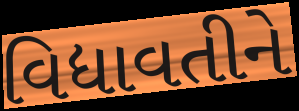
વિદ્યાવતીને